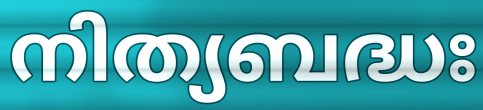
നിത്യബദ്ധഃ